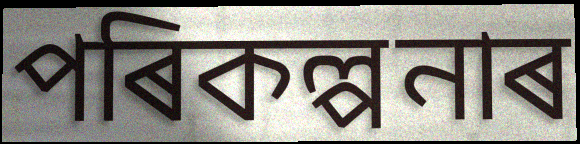
পৰিকল্পনাৰ